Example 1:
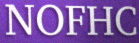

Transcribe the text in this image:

NOFHC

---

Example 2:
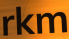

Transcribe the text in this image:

rkm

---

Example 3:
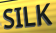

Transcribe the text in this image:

SILK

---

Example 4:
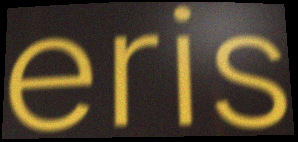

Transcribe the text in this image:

eris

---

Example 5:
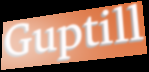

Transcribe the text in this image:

Guptill